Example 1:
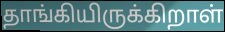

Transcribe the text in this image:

தாங்கியிருக்கிறாள்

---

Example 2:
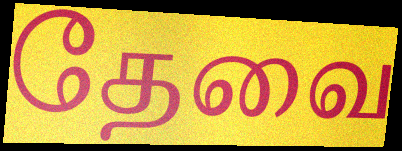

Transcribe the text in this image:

தேவை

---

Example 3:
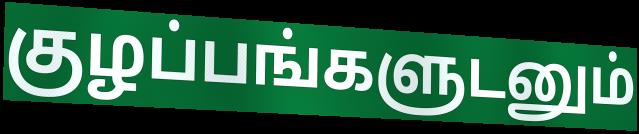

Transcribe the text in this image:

குழப்பங்களுடனும்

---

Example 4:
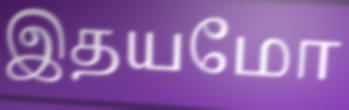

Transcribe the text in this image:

இதயமோ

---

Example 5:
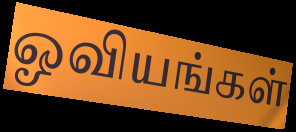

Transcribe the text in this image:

ஓவியங்கள்